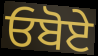
ਓਬੋਏ